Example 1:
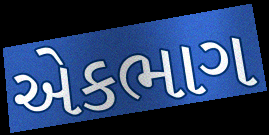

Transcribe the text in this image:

એકભાગ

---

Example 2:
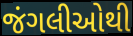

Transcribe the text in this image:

જંગલીઓથી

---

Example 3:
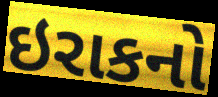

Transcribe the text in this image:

ઇરાકનો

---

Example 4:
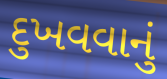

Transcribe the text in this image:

દુખવવાનું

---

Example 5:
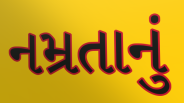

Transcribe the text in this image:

નમ્રતાનું